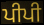
ਪੀਪੀ